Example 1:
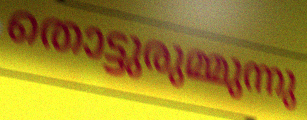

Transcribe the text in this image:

തൊട്ടുരുമ്മുന്നു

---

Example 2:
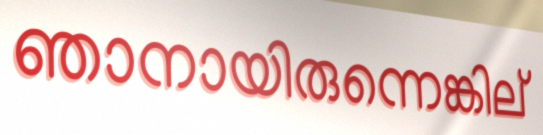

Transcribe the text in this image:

ഞാനായിരുന്നെങ്കില്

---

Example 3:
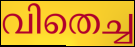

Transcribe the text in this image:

വിതെച്ച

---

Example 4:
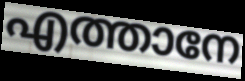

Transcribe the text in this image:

എത്താനേ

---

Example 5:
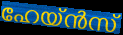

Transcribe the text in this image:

ഹേയ്ൻസ്